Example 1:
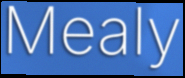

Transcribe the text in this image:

Mealy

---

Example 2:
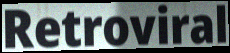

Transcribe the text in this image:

Retroviral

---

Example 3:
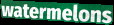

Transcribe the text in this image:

watermelons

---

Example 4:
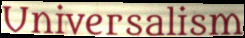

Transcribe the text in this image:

Universalism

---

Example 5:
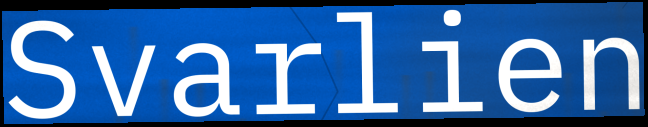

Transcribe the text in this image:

Svarlien